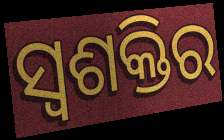
ସ୍ଵଶକ୍ତିର